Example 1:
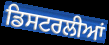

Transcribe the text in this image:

ਡਿਸਟਰਲੀਆਂ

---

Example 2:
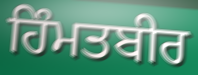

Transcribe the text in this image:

ਹਿੰਮਤਬੀਰ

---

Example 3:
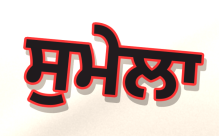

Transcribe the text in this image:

ਸੁਮੇਲਾ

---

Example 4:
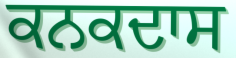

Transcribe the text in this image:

ਕਨਕਦਾਸ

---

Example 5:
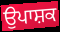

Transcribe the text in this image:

ਉਪਾਸ਼ਕ